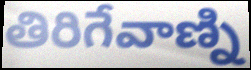
తిరిగేవాణ్ని